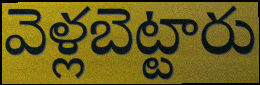
వెళ్లబెట్టారు